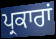
ਪ੍ਰਕਾਰਾਂ